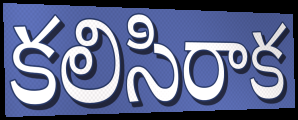
కలిసిరాక